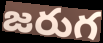
జరుగ